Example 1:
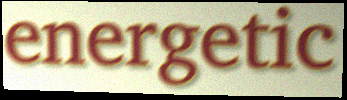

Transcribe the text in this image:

energetic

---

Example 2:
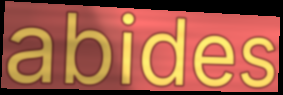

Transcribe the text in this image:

abides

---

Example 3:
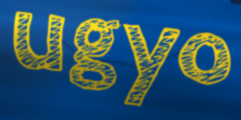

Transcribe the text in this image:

ugyo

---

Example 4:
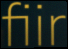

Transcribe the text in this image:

fiir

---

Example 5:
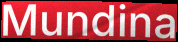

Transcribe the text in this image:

Mundina